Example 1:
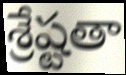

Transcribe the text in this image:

శ్రేష్టతా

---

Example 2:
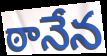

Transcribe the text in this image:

ఠానేన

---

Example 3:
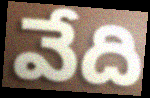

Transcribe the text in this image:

వేది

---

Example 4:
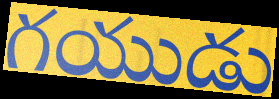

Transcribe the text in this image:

గయుడు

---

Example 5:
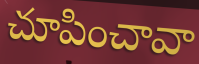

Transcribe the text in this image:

చూపించావా